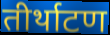
तीर्थाटण